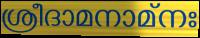
ശ്രീദാമനാമ്നഃ